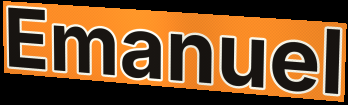
Emanuel